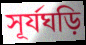
সূর্যঘড়ি